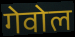
गेवोल